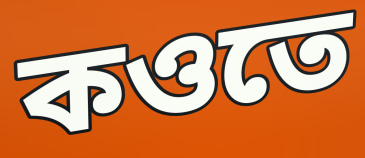
কওতে